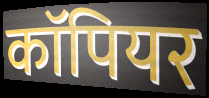
कॉपियर